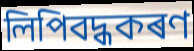
লিপিবদ্ধকৰণ